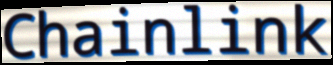
Chainlink